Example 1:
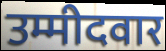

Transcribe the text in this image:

उम्‍मीदवार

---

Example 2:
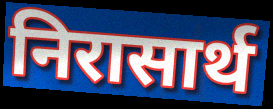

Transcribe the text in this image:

निरासार्थ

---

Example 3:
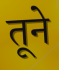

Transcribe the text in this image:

तूने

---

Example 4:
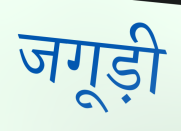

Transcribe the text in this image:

जगूड़ी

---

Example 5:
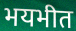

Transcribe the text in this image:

भयभीत